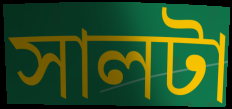
সালটা